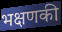
भक्षणकी